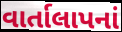
વાર્તાલાપનાં